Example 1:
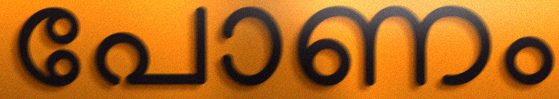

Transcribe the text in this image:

പോണം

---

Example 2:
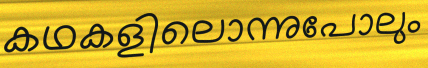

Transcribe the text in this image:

കഥകളിലൊന്നുപോലും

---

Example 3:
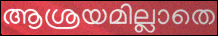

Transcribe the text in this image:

ആശ്രയമില്ലാതെ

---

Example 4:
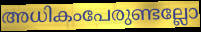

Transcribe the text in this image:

അധികംപേരുണ്ടല്ലോ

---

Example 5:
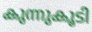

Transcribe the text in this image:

കുന്നുകൂടി